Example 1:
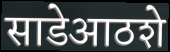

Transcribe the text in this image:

साडेआठशे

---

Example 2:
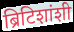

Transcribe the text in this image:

ब्रिटिशांशी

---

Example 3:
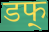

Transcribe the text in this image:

डफ्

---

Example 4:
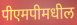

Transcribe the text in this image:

पीएमपीमधील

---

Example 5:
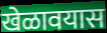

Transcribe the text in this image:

खेळावयास